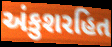
અંકુશરહિત